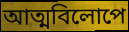
আত্মবিলোপে